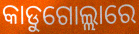
କାଡୁଗୋଲ୍ଲାରେ